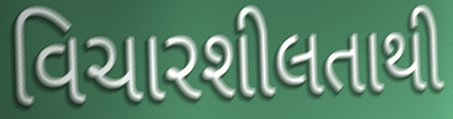
વિચારશીલતાથી